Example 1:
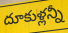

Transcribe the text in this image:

దూకుళ్లన్నీ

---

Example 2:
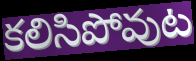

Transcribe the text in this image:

కలిసిపోవుట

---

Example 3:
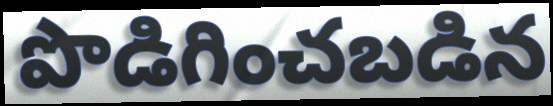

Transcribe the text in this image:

పొడిగించబడిన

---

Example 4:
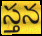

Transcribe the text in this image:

స్తన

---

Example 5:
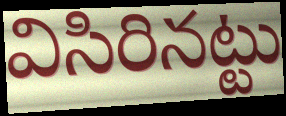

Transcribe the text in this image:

విసిరినట్టు